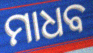
ମାଧବ